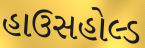
હાઉસહોલ્ડ